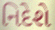
નિદેશે